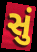
સું